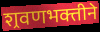
श्रवणभक्तीने